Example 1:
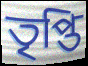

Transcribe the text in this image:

তৃপ্তি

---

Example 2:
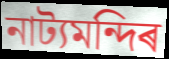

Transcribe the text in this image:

নাট্যমন্দিৰ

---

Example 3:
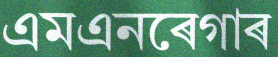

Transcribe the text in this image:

এমএনৰেগাৰ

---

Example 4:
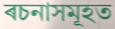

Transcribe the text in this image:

ৰচনাসমূহত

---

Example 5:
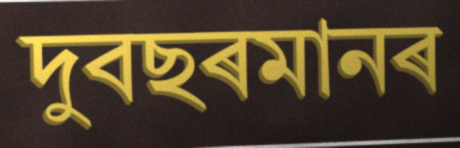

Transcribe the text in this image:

দুবছৰমানৰ